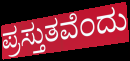
ಪ್ರಸ್ತುತವೆಂದು